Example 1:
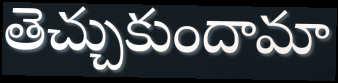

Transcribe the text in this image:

తెచ్చుకుందామా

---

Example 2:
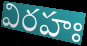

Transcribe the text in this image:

విరహః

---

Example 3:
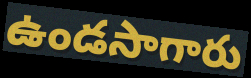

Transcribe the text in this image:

ఉండసాగారు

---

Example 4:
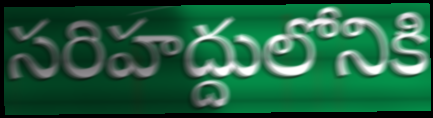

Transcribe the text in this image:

సరిహద్దులోనికి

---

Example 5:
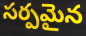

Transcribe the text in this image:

సర్పమైన